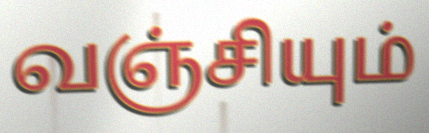
வஞ்சியும்